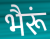
भैरूं